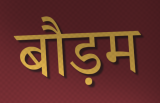
बौड़म